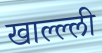
खाल्ल्ली